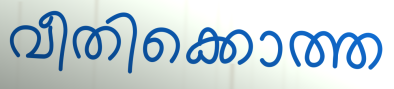
വീതിക്കൊത്ത